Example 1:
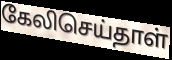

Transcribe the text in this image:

கேலிசெய்தாள்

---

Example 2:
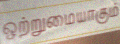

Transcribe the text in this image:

ஒற்றுமையாகும்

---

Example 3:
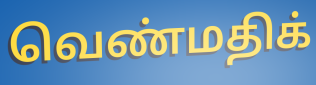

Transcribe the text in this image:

வெண்மதிக்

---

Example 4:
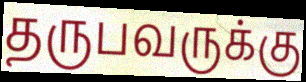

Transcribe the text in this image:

தருபவருக்கு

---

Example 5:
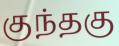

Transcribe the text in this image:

குந்தகு